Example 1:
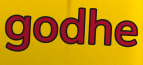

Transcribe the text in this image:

godhe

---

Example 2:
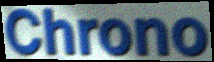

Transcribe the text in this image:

Chrono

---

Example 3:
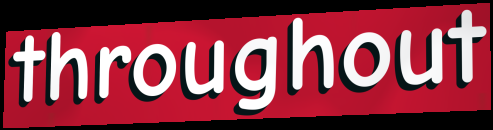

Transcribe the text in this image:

throughout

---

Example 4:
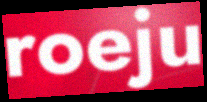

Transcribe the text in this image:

roeju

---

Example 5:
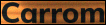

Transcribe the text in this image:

Carrom